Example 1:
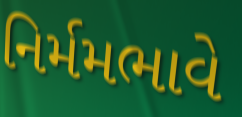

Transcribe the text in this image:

નિર્મમભાવે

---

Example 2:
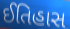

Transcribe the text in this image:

ઈતિહાસ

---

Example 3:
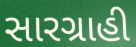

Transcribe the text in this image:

સારગ્રાહી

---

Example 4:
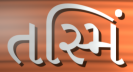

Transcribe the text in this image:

તસ્મિં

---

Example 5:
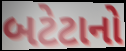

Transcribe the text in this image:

બટેટાનો